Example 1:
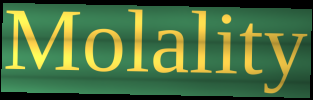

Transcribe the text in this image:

Molality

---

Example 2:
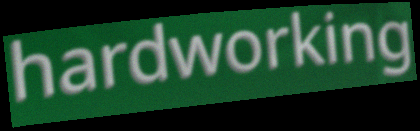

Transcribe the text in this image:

hardworking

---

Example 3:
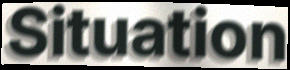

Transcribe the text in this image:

Situation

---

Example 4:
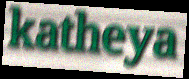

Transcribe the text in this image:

katheya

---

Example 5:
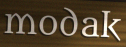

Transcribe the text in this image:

modak